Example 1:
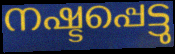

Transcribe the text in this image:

നഷ്ടപ്പെട്ടു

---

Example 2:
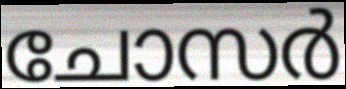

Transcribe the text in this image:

ചോസർ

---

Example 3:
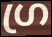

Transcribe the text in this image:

ഗ്ര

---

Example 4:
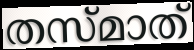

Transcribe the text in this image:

തസ്മാത്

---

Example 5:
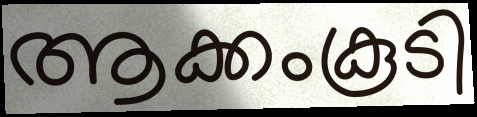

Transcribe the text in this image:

ആക്കംകൂടി